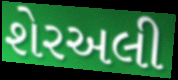
શેરઅલી